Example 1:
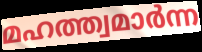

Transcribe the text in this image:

മഹത്ത്വമാർന്ന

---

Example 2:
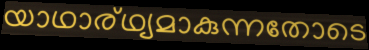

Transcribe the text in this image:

യാഥാര്ഥ്യമാകുന്നതോടെ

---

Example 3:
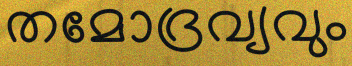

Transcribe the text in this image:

തമോദ്രവ്യവും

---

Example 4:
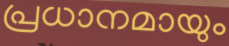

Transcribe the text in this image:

പ്രധാനമായും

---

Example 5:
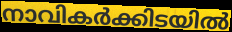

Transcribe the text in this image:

നാവികർക്കിടയിൽ